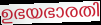
ഉഭയഭാരതി